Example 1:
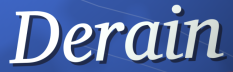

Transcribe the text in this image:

Derain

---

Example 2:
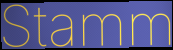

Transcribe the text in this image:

Stamm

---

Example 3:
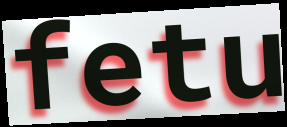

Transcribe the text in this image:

fetu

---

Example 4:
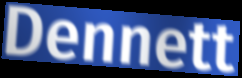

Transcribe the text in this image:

Dennett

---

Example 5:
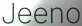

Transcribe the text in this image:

Jeeno